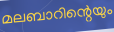
മലബാറിന്റെയും